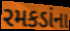
રમકડાંના